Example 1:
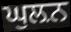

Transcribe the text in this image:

ਘੁਲ਼ਨ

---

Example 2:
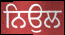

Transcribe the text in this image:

ਨਿਉਲ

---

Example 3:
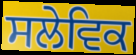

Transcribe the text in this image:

ਸਲੇਵਿਕ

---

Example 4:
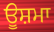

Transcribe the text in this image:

ਊਸ਼ਮਾ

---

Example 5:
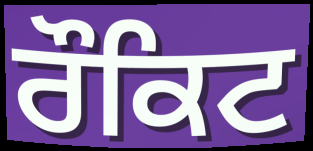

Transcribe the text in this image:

ਰੌਕਿਟ